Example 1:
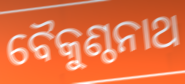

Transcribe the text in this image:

ବୈକୁଣ୍ଠନାଥ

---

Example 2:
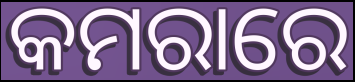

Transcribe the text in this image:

କମରାରେ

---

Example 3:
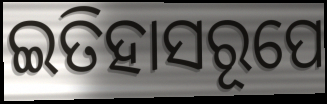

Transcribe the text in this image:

ଇତିହାସରୂପେ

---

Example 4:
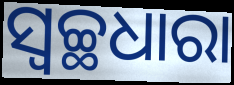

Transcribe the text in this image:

ସ୍ୱଚ୍ଛଧାରା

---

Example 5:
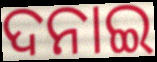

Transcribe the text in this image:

ଦନାଇ